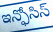
ఇన్ఫోసిస్